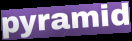
pyramid